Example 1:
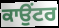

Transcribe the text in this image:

ਕਾਉਂਟਰ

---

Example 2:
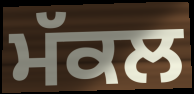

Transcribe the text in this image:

ਮੱਕਲ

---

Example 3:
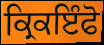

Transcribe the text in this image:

ਕ੍ਰਿਕਇੰਫੋ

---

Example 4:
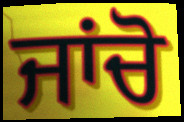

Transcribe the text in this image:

ਜਾਂਚੋ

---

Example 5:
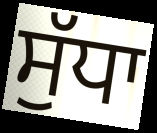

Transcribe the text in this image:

ਸੁੱਧਾ